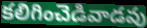
కలిగించెడివాడవు